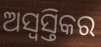
ଅସ୍ୱସ୍ତିକର